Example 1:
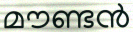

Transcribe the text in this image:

മൗണ്ടൻ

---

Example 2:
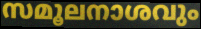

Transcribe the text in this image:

സമൂലനാശവും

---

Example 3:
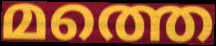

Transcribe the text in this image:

മത്തെ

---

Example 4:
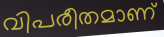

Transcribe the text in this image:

വിപരീതമാണ്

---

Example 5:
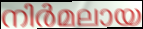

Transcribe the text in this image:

നിർമലായ